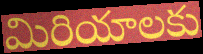
మిరియాలకు